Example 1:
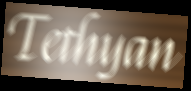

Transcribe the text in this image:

Tethyan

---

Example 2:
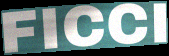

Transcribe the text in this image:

FICCI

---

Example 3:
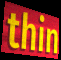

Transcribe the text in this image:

thin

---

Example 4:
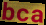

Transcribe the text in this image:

bca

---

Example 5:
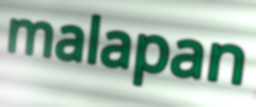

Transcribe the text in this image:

malapan